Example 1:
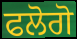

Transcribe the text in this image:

ਫਲੋਗੋ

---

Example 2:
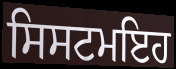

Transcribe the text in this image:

ਸਿਸਟਮਇਹ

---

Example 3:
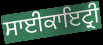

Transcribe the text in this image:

ਸਾਈਕਾਇਟ੍ਰੀ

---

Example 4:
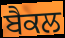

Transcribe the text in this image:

ਬੈਕਲ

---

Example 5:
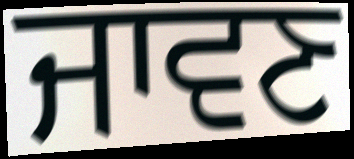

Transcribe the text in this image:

ਜਾਵਣ